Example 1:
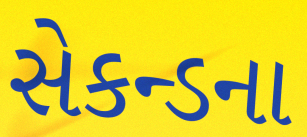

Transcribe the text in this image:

સેકન્ડના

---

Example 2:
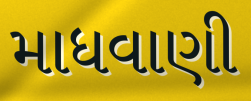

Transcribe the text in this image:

માધવાણી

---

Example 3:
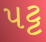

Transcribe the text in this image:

પટ્ટ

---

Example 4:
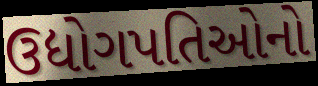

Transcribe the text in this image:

ઉદ્યોગપતિઓનો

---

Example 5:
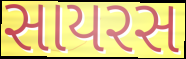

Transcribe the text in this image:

સાયરસ